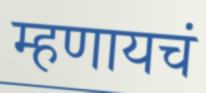
म्हणायचं